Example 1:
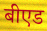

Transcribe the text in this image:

बीएड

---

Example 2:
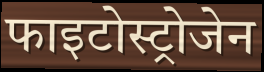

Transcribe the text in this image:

फाइटोस्ट्रोजेन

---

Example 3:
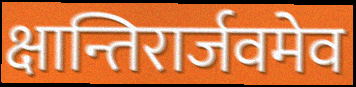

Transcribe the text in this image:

क्षान्तिरार्जवमेव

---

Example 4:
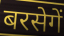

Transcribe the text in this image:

बरसेगें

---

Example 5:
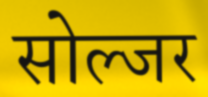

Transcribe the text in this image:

सोल्जर